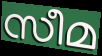
സീമ